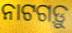
ନାଟଗଡ଼ୁ